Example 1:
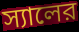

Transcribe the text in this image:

স্যালের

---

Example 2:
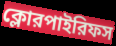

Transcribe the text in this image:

ক্লোরপাইরিফস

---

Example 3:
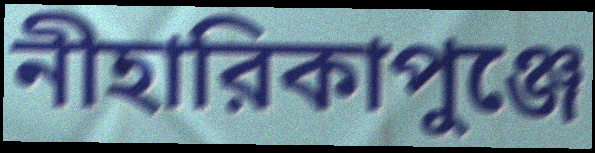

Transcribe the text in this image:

নীহারিকাপুঞ্জে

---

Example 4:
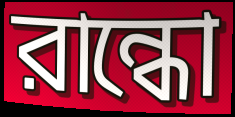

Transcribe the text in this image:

রান্ধো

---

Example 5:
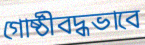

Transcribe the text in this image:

গোষ্ঠীবদ্ধভাবে